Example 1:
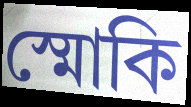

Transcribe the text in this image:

স্মোকি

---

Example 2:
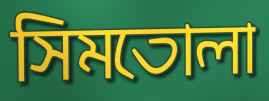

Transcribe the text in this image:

সিমতোলা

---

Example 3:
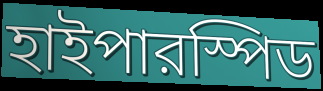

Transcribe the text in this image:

হাইপারস্পিড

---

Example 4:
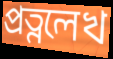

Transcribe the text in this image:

প্রত্নলেখ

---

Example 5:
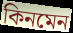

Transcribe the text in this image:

কিনমেন